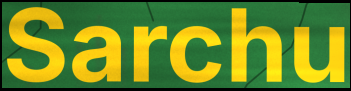
Sarchu